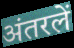
अंतरलें